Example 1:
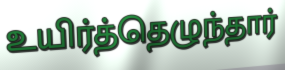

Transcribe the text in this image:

உயிர்த்தெழுந்தார்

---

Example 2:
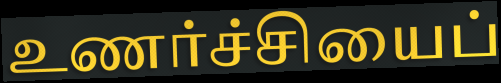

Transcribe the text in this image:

உணர்ச்சியைப்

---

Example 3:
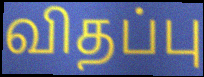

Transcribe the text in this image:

விதப்பு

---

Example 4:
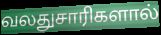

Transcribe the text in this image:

வலதுசாரிகளால்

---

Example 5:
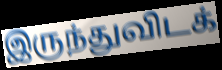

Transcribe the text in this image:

இருந்துவிடக்